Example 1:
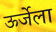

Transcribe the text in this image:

ऊर्जेला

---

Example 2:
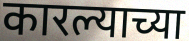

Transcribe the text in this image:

कारल्याच्या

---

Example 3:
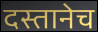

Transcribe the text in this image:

दस्तानेच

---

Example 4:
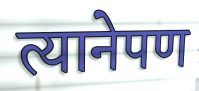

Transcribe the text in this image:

त्यानेपण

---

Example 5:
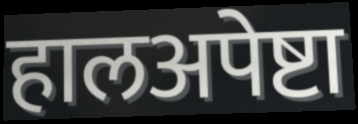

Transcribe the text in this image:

हालअपेष्टा